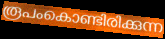
രൂപംകൊണ്ടിരിക്കുന്ന